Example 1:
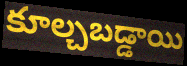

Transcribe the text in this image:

కూల్చబడ్డాయి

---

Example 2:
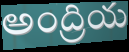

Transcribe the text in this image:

అంద్రియ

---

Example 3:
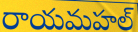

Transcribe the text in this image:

రాయమహల్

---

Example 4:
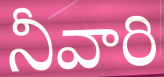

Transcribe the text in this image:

నీవారి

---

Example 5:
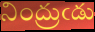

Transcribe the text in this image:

నింద్రుఁడు